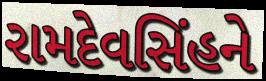
રામદેવસિંહને